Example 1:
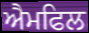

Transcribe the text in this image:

ਐਮਫਿਲ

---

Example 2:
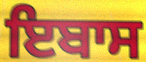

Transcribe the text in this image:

ਇਬਾਸ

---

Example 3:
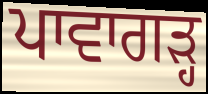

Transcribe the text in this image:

ਪਾਵਾਗੜ੍ਹ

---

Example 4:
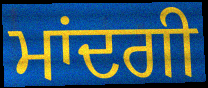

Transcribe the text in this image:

ਮਾਂਦਗੀ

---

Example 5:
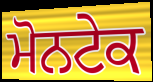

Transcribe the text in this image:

ਮੋਨਟੇਕ